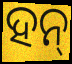
ହନ୍